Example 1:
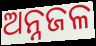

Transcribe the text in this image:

ଅନ୍ନଜଳ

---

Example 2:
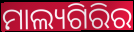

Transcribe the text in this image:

ମାଲ୍ୟଗିରିର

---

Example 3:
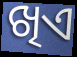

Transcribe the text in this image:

ଖିଏ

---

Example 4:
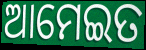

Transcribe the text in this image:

ଆମେଇତ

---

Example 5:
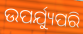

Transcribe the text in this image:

ଉପର୍ଯ୍ୟୁପରି